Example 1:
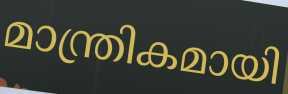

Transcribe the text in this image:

മാന്ത്രികമായി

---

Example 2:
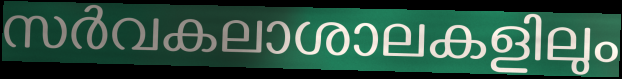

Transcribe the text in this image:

സർവകലാശാലകളിലും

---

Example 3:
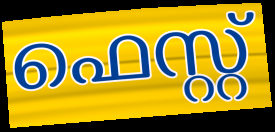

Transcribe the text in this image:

ഫെസ്റ്റ്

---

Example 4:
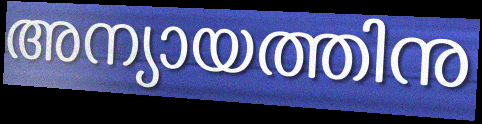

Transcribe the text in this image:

അന്യായത്തിനു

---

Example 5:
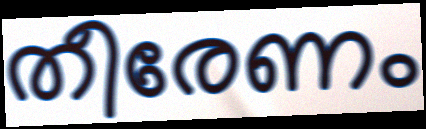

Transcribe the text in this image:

തീരേണം